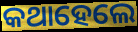
କଥାହେଲେ